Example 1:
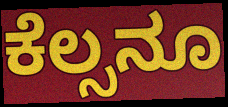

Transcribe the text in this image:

ಕೆಲ್ಸನೂ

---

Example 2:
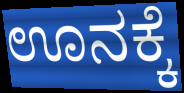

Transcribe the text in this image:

ಊನಕ್ಕೆ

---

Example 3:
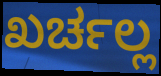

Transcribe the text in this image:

ಖರ್ಚಲ್ಲ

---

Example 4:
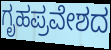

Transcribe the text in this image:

ಗೃಹಪ್ರವೇಶದ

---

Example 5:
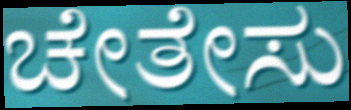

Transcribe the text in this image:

ಚೇತೇಸು